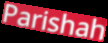
Parishah